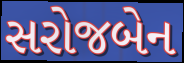
સરોજબેન